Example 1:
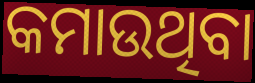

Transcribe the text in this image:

କମାଉଥିବା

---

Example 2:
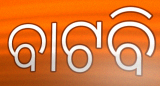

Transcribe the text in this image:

ବାଟବି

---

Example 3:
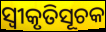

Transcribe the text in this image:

ସ୍ଵୀକୃତିସୂଚକ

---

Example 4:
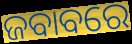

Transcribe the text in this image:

ଜବାବରେ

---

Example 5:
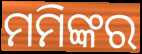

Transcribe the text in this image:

ମମିଙ୍କର